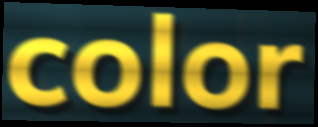
color